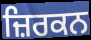
ਜ਼ਿਰਕਨ